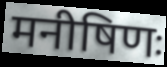
मनीषिणः